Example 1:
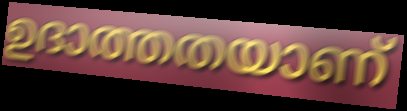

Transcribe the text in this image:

ഉദാത്തതയാണ്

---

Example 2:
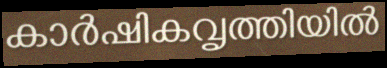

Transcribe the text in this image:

കാർഷികവൃത്തിയിൽ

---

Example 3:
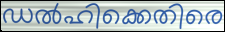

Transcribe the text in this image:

ഡൽഹിക്കെതിരെ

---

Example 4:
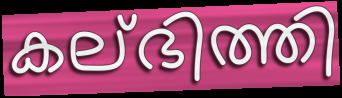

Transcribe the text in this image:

കല്ഭിത്തി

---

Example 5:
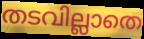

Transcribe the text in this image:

തടവില്ലാതെ